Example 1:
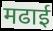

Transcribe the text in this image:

मढाई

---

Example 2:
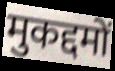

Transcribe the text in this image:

मुकद्दमों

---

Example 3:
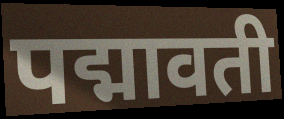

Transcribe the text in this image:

पद्मावती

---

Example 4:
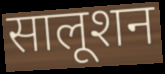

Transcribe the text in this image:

सालूशन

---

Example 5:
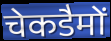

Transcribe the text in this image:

चेकडैमों